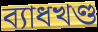
ব্যাধখণ্ড